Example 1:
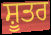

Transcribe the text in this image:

ਸ਼ੂਤਰ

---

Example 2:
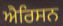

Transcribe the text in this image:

ਐਰਿਸਨ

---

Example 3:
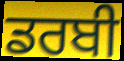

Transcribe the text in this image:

ਡਰਬੀ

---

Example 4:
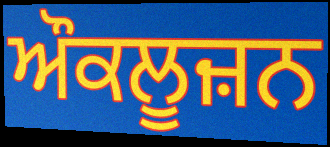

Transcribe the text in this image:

ਔਕਲੂਜ਼ਨ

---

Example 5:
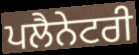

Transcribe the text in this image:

ਪਲੈਨੇਟਰੀ